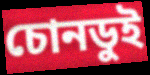
চোনডুই